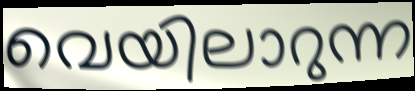
വെയിലാറുന്ന